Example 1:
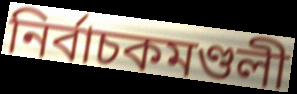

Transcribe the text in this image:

নিৰ্বাচকমণ্ডলী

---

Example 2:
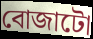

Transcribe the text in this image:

বোজাটো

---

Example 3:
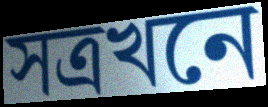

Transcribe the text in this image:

সত্ৰখনে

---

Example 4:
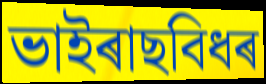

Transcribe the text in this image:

ভাইৰাছবিধৰ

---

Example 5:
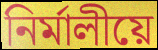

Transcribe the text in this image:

নিৰ্মালীয়ে